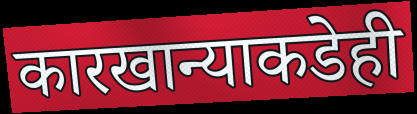
कारखान्याकडेही